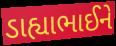
ડાહ્યાભાઈને